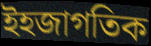
ইহজাগতিক